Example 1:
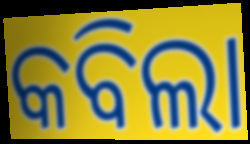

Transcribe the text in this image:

କବିଲା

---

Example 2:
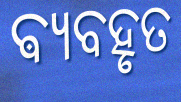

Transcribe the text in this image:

ଵ୍ୟବହୃତ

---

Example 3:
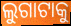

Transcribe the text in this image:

ଲୁଗାଟାକୁ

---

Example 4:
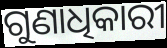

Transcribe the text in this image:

ଗୁଣାଧିକାରୀ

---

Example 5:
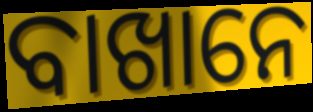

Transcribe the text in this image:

ବାଖାନେ